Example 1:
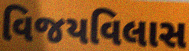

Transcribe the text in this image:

વિજયવિલાસ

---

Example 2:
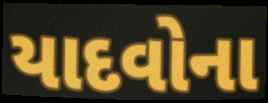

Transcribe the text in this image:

યાદવોના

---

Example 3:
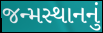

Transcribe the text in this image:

જન્મસ્થાનનું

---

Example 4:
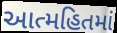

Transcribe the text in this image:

આત્મહિતમાં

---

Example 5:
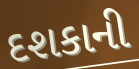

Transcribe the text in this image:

દશકાની